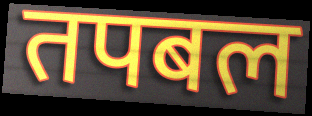
तपबल